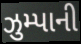
ઝુમ્પાની